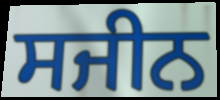
ਸਜੀਨ